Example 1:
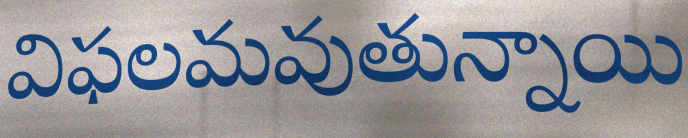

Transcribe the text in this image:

విఫలమవుతున్నాయి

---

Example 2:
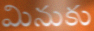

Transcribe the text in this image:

మినుకు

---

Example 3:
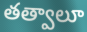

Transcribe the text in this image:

తత్వాలూ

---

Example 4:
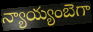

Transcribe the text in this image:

న్యాయ్యంబెగా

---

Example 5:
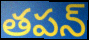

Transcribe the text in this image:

తపన్